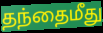
தந்தைமீது